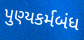
પુણ્યકર્મબંધ